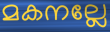
മകനല്ലേ